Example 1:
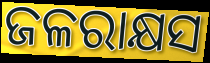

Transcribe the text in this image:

ଜଳରାକ୍ଷସ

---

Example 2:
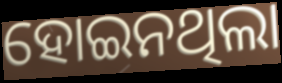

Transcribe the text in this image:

ହୋଇନଥିଲା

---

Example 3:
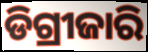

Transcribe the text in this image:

ଡିଗ୍ରୀଜାରି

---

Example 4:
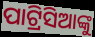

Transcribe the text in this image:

ପାଟ୍ରିସିଆଙ୍କୁ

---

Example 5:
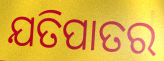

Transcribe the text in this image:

ଯତିପାତର